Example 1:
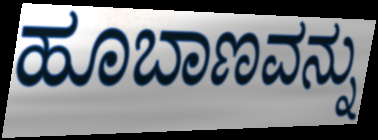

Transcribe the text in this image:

ಹೂಬಾಣವನ್ನು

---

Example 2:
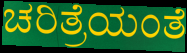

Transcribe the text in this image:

ಚರಿತ್ರೆಯಂತೆ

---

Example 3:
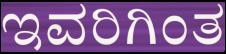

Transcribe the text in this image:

ಇವರಿಗಿಂತ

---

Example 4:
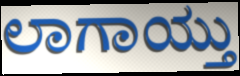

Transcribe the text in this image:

ಲಾಗಾಯ್ತು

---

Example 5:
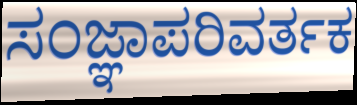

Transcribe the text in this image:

ಸಂಜ್ಞಾಪರಿವರ್ತಕ